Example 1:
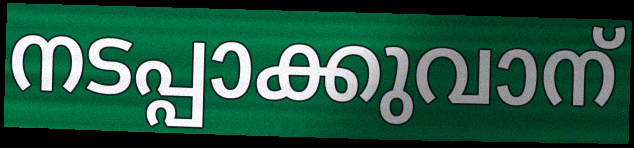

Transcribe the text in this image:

നടപ്പാക്കുവാന്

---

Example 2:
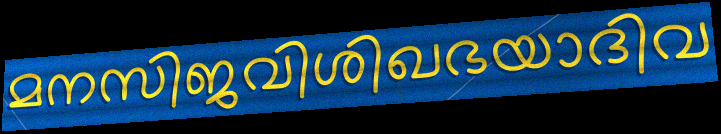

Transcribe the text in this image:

മനസിജവിശിഖഭയാദിവ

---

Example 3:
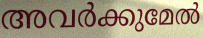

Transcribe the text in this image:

അവർക്കുമേൽ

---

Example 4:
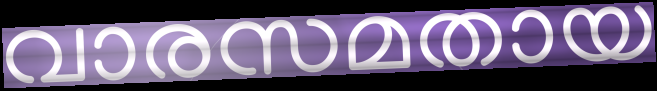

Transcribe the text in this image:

വാരസമതായ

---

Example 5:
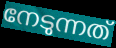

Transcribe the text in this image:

നേടുന്നത്